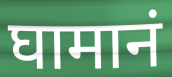
घामानं